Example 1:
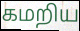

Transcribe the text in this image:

கமறிய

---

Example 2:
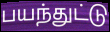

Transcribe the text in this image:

பயந்துட்டு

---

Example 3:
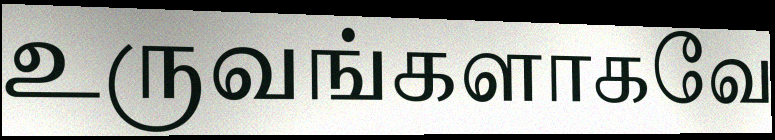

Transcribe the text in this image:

உருவங்களாகவே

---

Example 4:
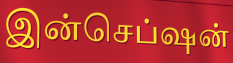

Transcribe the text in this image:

இன்செப்ஷன்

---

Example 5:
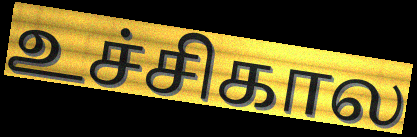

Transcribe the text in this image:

உச்சிகால